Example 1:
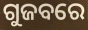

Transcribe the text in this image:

ଗୁଜବରେ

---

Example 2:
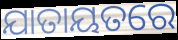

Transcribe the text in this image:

ଯାତାୟତରେ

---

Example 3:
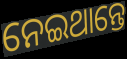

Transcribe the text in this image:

ନେଇଥାନ୍ତେ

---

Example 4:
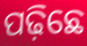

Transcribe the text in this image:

ପଢ଼ିଛେ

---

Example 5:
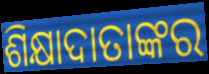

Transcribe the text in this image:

ଶିକ୍ଷାଦାତାଙ୍କର